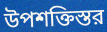
উপশক্তিস্তর